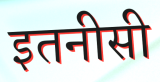
इतनीसी